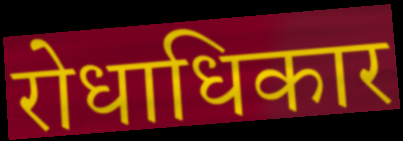
रोधाधिकार